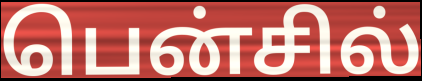
பென்சில்